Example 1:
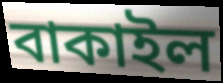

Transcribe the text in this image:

বাকাইল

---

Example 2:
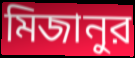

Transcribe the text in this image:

মিজানুর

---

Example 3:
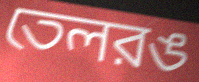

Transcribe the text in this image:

তেলরঙ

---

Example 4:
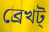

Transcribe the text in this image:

ব্রেখট্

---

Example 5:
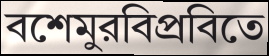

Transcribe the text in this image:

বশেমুরবিপ্রবিতে